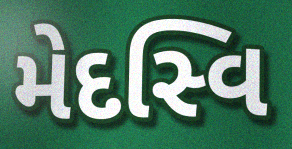
મેદસ્વિ